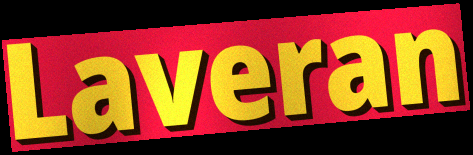
Laveran